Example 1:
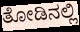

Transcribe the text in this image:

ತೋಡಿನಲ್ಲಿ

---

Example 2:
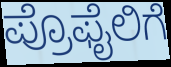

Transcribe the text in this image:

ಪ್ರೊಫೈಲಿಗೆ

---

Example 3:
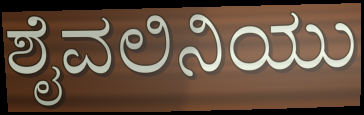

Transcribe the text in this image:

ಶೈವಲಿನಿಯು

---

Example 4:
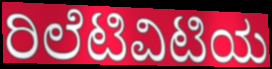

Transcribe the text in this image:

ರಿಲೆಟಿವಿಟಿಯ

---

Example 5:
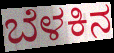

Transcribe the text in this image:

ಬೆಳಕಿನ